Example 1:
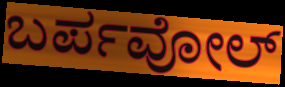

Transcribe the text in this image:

ಬರ್ಪವೋಲ್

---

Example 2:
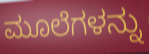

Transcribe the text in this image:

ಮೂಲೆಗಳನ್ನು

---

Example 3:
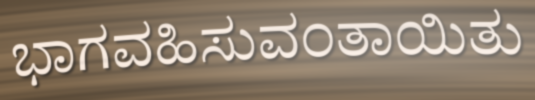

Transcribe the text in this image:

ಭಾಗವಹಿಸುವಂತಾಯಿತು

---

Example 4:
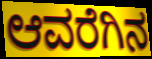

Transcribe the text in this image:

ಆವರೆಗಿನ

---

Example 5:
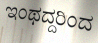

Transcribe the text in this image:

ಇಂಥದ್ದರಿಂದ